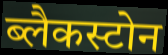
ब्‍लैकस्‍टोन